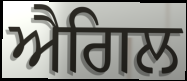
ਐਗਿਲ